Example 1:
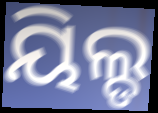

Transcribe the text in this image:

ୟିଲ୍ଡ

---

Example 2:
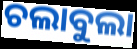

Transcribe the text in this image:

ଚଲାବୁଲା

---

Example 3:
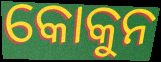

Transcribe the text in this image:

କୋକୁନ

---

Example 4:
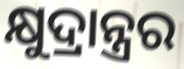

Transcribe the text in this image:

କ୍ଷୁଦ୍ରାନ୍ତ୍ରର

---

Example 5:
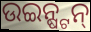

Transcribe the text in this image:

ଉଇନ୍ଷ୍ଟନ୍